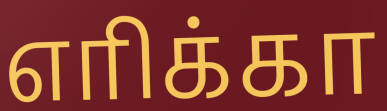
எரிக்கா